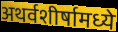
अथर्वशीर्षामध्ये